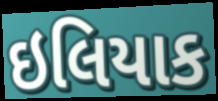
ઇલિયાક